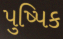
પુષ્પિક